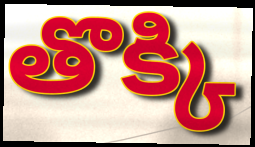
తొక్కి